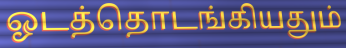
ஓடத்தொடங்கியதும்